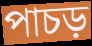
পাচড়